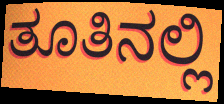
ತೂತಿನಲ್ಲಿ